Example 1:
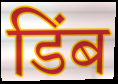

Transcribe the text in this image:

डिंब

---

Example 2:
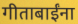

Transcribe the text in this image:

गीताबाईंना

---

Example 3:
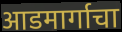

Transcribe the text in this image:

आडमार्गाचा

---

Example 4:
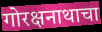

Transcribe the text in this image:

गोरक्षनाथाचा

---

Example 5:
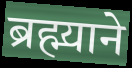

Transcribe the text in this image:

ब्रह्म्याने